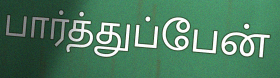
பார்த்துப்பேன்